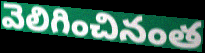
వెలిగించినంత